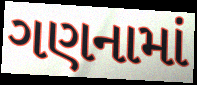
ગણનામાં